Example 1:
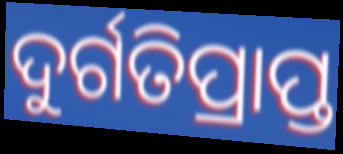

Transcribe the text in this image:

ଦୁର୍ଗତିପ୍ରାପ୍ତ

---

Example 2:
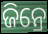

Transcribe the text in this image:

ଜିନ୍ରେ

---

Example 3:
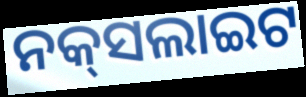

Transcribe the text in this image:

ନକ୍‌ସଲାଇଟ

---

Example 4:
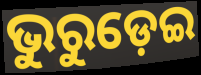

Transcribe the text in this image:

ଭୁରୁଡ଼େଇ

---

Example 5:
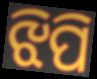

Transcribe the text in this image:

ଝିପି